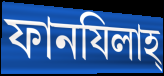
ফানযিলাহ্